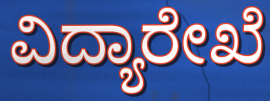
ವಿದ್ಯಾರೇಖೆ